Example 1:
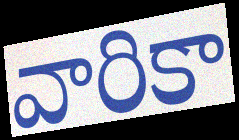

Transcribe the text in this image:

వారికా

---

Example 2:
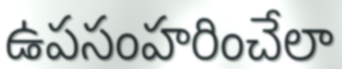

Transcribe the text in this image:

ఉపసంహరించేలా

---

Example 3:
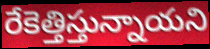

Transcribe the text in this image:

రేకెత్తిస్తున్నాయని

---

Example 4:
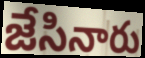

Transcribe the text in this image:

జేసినారు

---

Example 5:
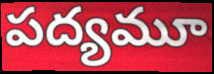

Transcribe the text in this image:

పద్యమూ